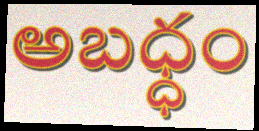
అబధ్ధం